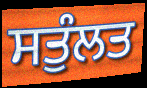
ਸਤੁੰਲਤ